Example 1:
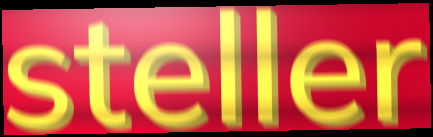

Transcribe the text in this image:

steller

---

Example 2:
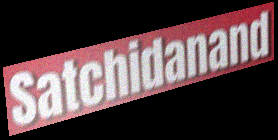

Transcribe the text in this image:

Satchidanand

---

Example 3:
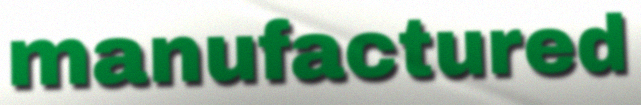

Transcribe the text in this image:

manufactured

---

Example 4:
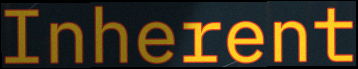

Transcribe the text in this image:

Inherent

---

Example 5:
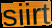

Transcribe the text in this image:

siirt